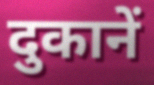
दुकानें